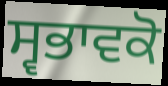
ਸ੍ਵਭਾਵਕੋ